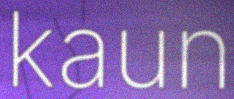
kaun